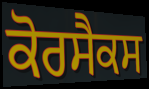
ਕੋਰਸੈਕਸ